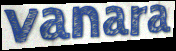
vanara